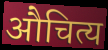
औचित्‍य